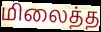
மிலைத்த